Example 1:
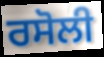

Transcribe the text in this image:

ਰਸੋਲੀ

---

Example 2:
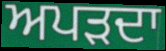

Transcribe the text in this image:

ਅਪੜਦਾ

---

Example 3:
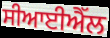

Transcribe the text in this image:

ਸੀਆਈਐੱਲ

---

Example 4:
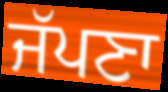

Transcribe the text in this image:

ਜੱਪਣਾ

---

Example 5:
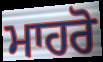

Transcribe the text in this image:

ਮਾਹਰੋ